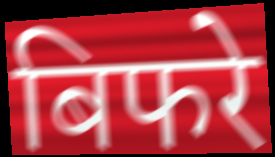
बिफरे